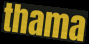
thama